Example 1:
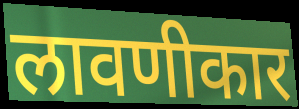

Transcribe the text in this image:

लावणीकार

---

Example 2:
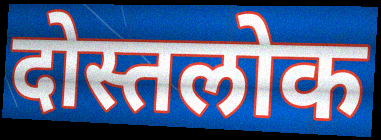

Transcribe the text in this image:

दोस्तलोक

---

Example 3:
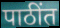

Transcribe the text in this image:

पाठींत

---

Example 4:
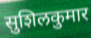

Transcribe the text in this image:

सुशिलकुमार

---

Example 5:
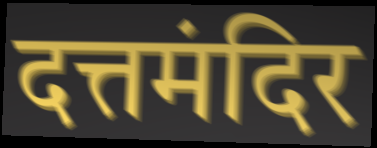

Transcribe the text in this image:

दत्तमंदिर